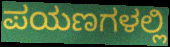
ಪಯಣಗಳಲ್ಲಿ